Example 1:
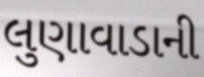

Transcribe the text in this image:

લુણાવાડાની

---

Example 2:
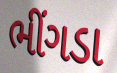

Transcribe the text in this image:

ભીંગડા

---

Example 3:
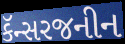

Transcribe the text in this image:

કૅન્સરજનીન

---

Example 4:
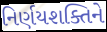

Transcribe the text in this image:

નિર્ણયશક્તિને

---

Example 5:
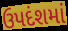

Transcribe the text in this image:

ઉપદંશમાં